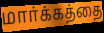
மார்க்கத்தை